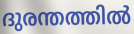
ദുരന്തത്തിൽ